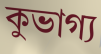
কুভাগ্য